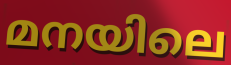
മനയിലെ